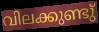
വിലക്കുണ്ടു്